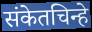
संकेतचिन्हे